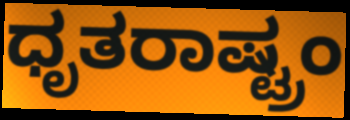
ಧೃತರಾಷ್ಟ್ರಂ